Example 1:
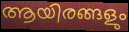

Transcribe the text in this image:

ആയിരങ്ങളും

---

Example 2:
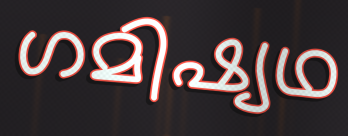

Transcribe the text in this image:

ഗമിഷ്യഥ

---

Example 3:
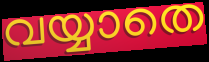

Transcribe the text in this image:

വയ്യാതെ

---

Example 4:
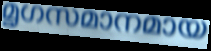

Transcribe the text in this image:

മൃഗസമാനമായ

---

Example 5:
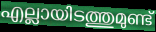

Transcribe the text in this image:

എല്ലായിടത്തുമുണ്ട്